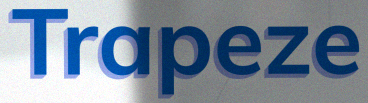
Trapeze